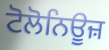
ਟੋਲੋਨਿਊਜ਼